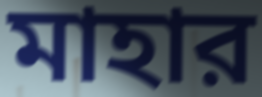
মাহার